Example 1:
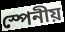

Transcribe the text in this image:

স্পেনীয়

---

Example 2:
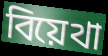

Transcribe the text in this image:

বিয়েথা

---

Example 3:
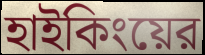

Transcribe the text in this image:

হাইকিংয়ের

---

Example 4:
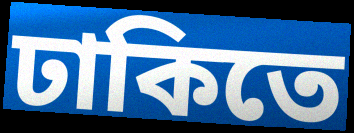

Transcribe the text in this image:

ঢাকিতে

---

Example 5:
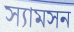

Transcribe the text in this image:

স্যামসন